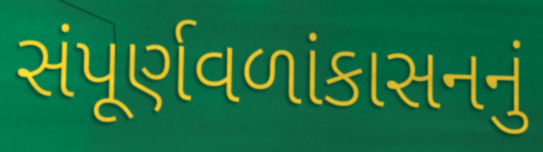
સંપૂર્ણવળાંકાસનનું